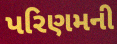
પરિણમની